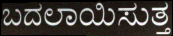
ಬದಲಾಯಿಸುತ್ತ